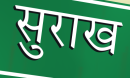
सुराख